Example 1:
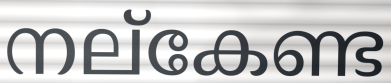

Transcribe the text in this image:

നല്കേണ്ട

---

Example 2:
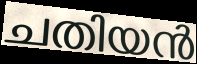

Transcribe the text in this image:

ചതിയൻ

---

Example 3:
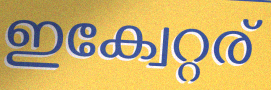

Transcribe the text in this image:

ഇക്വേറ്റര്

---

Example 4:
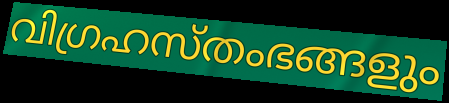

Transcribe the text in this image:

വിഗ്രഹസ്തംഭങ്ങളും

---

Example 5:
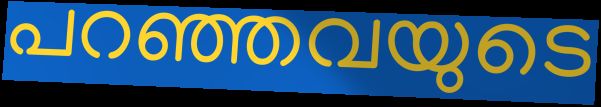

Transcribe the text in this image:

പറഞ്ഞവയുടെ